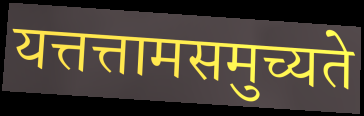
यत्तत्तामसमुच्यते